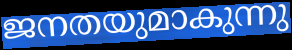
ജനതയുമാകുന്നു